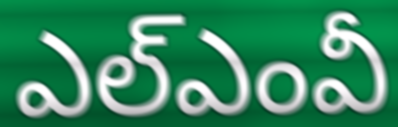
ఎల్ఎంవీ